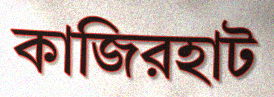
কাজিরহাট